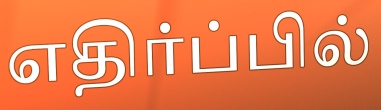
எதிர்ப்பில்